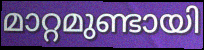
മാറ്റമുണ്ടായി